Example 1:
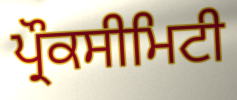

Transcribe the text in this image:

ਪ੍ਰੌਕਸੀਮਿਟੀ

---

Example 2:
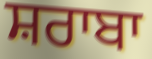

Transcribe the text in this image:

ਸ਼ਰਾਬਾ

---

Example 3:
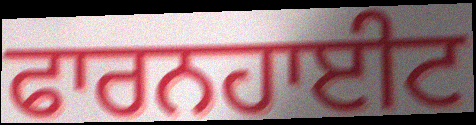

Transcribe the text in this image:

ਫਾਰਨਹਾਈਟ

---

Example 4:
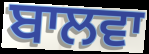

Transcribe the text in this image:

ਬਾਲਵਾ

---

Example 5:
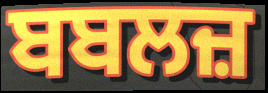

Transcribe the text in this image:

ਬਬਲਜ਼